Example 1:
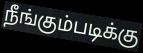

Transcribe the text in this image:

நீங்கும்படிக்கு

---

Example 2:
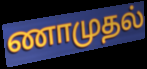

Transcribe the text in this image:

ணாமுதல்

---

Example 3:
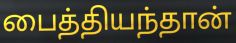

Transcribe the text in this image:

பைத்தியந்தான்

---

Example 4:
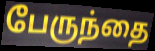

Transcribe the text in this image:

பேருந்தை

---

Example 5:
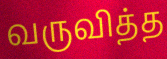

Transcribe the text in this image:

வருவித்த